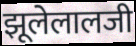
झूलेलालजी